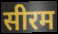
सीरम